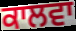
ਕਾਲਵਾ